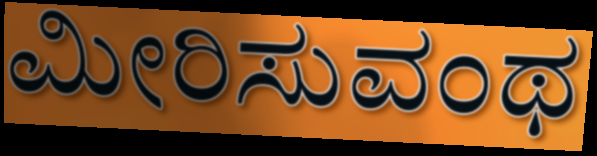
ಮೀರಿಸುವಂಥ